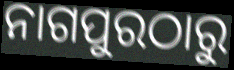
ନାଗପୁରଠାରୁ